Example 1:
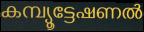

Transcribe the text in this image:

കമ്പ്യൂട്ടേഷണൽ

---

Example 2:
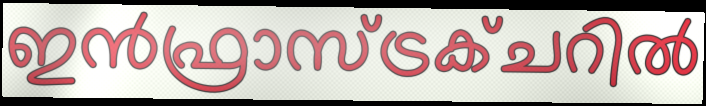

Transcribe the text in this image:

ഇൻഫ്രാസ്ട്രക്ചറിൽ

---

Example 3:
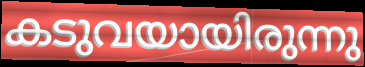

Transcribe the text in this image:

കടുവയായിരുന്നു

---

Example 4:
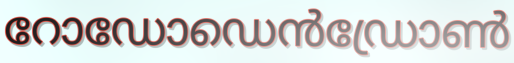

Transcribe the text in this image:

റോഡോഡെൻഡ്രോൺ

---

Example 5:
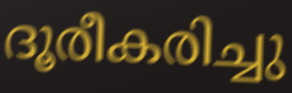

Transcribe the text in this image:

ദൂരീകരിച്ചു